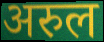
अरुल